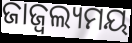
ଜାଜ୍ୱଲ୍ୟମୟ